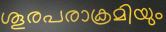
ശൂരപരാക്രമിയും